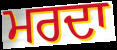
ਮਰਦਾ